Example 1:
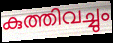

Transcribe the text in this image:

കുത്തിവച്ചും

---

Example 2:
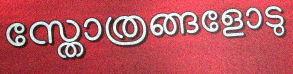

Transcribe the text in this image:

സ്തോത്രങ്ങളോടു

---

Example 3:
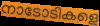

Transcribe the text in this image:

നാടോടികളെ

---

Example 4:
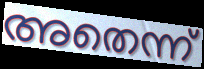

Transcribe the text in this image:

അതെന്ന്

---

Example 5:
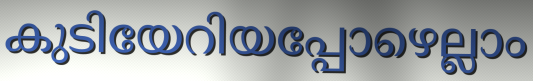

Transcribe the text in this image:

കുടിയേറിയപ്പോഴെല്ലാം